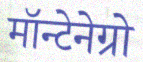
मॉन्टेनेग्रो